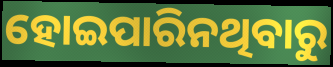
ହୋଇପାରିନଥିବାରୁ